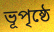
ভূপৃষ্ঠে